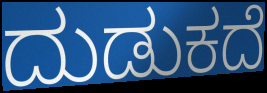
ದುಡುಕದೆ